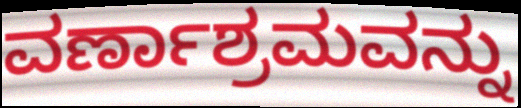
ವರ್ಣಾಶ್ರಮವನ್ನು